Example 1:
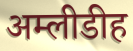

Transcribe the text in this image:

अम्लीडीह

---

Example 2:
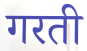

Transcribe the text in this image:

गरती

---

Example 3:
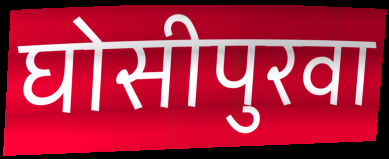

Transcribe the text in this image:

घोसीपुरवा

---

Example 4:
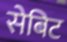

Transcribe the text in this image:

सेबिट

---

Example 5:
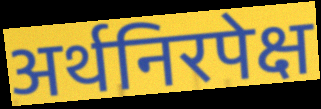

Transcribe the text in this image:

अर्थनिरपेक्ष